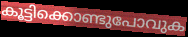
കൂട്ടിക്കൊണ്ടുപോവുക